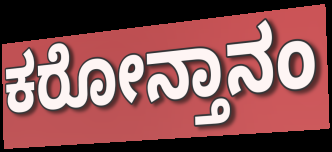
ಕರೋನ್ತಾನಂ